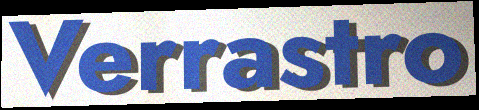
Verrastro